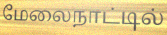
மேலைநாட்டில்